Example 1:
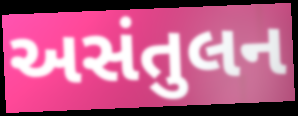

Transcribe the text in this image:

અસંતુલન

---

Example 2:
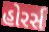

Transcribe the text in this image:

હોરર્સ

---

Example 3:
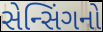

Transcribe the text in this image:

સેન્સિંગનો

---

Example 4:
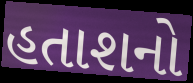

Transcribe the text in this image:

હતાશનો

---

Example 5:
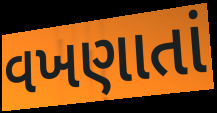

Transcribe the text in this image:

વખણાતાં